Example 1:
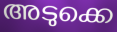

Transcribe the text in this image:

അടുക്കെ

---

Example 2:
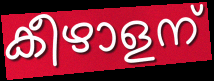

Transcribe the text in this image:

കീഴാളന്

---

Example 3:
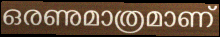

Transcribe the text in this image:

ഒരണുമാത്രമാണ്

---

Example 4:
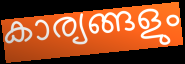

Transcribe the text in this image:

കാര്യങ്ങളും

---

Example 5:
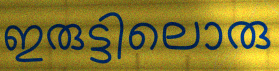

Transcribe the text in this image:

ഇരുട്ടിലൊരു